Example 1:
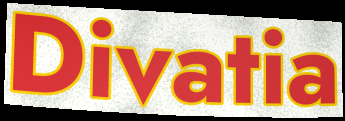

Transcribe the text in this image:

Divatia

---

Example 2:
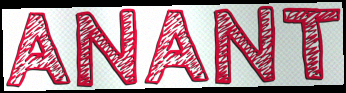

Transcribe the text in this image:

ANANT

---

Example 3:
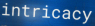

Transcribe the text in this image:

intricacy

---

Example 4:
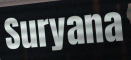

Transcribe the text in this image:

Suryana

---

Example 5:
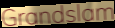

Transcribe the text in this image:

Grandslam